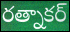
రత్నాకర్